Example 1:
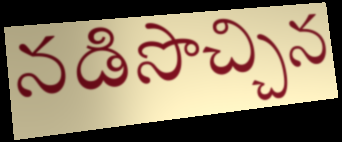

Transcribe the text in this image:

నడిసొచ్చిన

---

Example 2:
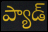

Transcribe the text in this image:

ప్యాడ్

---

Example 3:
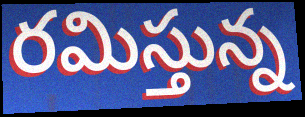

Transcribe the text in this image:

రమిస్తున్న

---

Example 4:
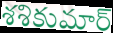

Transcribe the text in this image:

శశికుమార్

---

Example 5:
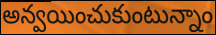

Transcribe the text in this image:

అన్వయించుకుంటున్నాం